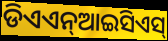
ଡିଏଏନ୍ଆଇସିଏସ୍